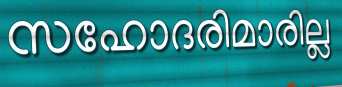
സഹോദരിമാരില്ല